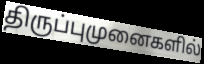
திருப்புமுனைகளில்